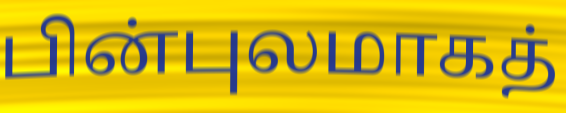
பின்புலமாகத்